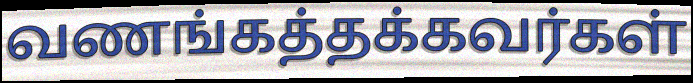
வணங்கத்தக்கவர்கள்